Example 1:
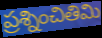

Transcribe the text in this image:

ప్రశ్నించితిమి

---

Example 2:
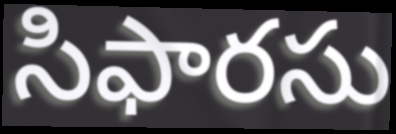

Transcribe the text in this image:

సిఫారసు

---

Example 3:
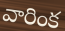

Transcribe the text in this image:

వారింక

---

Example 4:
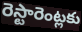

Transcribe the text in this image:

రెస్టారెంట్లకు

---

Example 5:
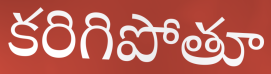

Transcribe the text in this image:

కరిగిపోతూ